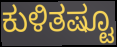
ಕುಳಿತಷ್ಟೂ